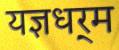
यज्ञधर्म